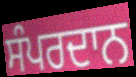
ਸੰਪਰਦਾਨ